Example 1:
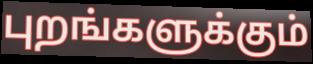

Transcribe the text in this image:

புறங்களுக்கும்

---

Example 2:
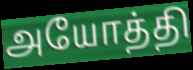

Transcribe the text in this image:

அயோத்தி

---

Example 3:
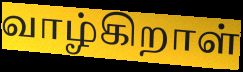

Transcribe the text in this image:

வாழ்கிறாள்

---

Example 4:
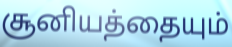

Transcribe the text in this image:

சூனியத்தையும்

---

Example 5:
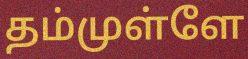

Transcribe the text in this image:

தம்முள்ளே